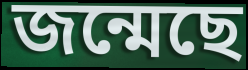
জন্মেছে